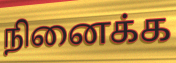
நினைக்க